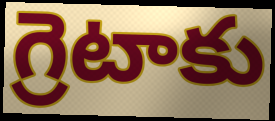
గ్రెటాకు